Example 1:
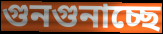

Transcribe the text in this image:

গুনগুনাচ্ছে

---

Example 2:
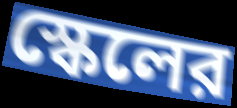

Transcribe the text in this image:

স্কেলের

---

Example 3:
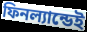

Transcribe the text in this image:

ফিনল্যান্ডেই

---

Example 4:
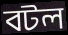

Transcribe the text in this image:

বটল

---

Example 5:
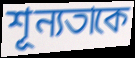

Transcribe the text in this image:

শূন্যতাকে